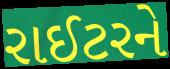
રાઈટરને